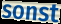
sonst